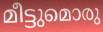
മീട്ടുമൊരു